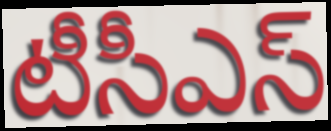
టీసీఎస్